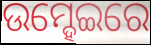
ଉମ୍ହେଇରେ